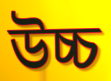
উচ্চ